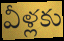
వీళ్లకు